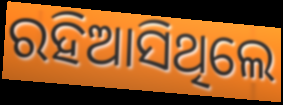
ରହିଆସିଥିଲେ